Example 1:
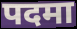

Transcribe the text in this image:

पदमा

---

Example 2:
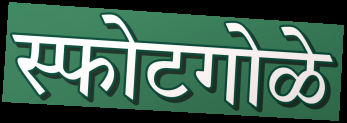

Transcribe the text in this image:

स्फोटगोळे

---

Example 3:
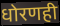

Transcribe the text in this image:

धोरणही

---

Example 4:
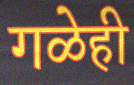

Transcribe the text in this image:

गळेही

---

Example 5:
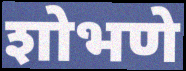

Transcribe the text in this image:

शोभणे